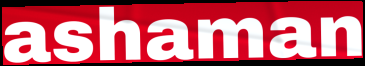
ashaman